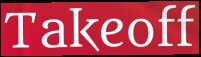
Takeoff